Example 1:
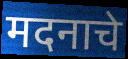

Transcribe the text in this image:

मदनाचे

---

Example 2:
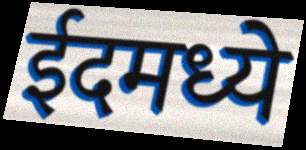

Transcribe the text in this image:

ईदमध्ये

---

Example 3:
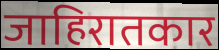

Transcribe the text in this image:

जाहिरातकार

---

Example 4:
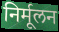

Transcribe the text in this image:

निर्मूलन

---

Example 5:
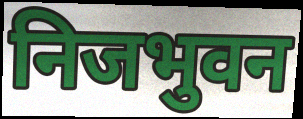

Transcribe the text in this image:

निजभुवन